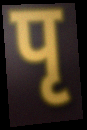
पृ